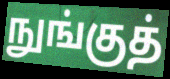
நுங்குத்